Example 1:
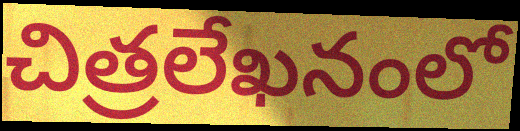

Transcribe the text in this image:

చిత్రలేఖనంలో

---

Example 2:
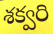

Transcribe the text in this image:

శక్వరి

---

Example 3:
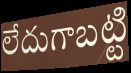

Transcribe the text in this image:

లేదుగాబట్టి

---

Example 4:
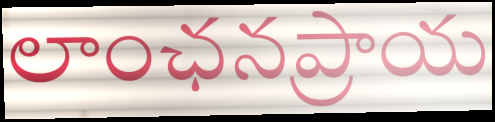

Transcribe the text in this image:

లాంఛనప్రాయ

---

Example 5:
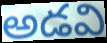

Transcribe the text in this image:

అడవి